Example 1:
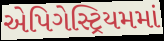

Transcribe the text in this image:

એપિગેસ્ટ્રિયમમાં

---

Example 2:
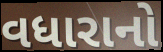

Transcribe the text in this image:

વધારાનો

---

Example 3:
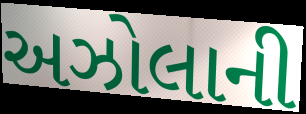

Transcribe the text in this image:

અઝોલાની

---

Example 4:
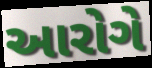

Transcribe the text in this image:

આરોગે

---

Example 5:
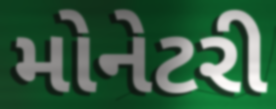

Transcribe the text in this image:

મોનેટરી